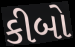
કીબો